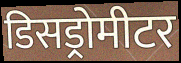
डिसड्रोमीटर